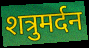
शत्रुमर्दन